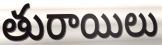
తురాయిలు